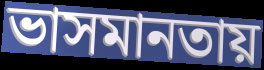
ভাসমানতায়